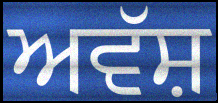
ਅਵੱਸ਼